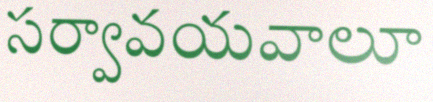
సర్వావయవాలూ